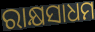
ରାକ୍ଷସାଧମ